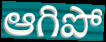
ఆగిపో